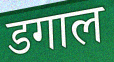
डगाल